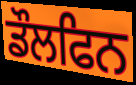
ਡੌਲਫਿਨ